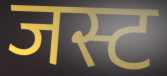
जस्ट